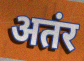
अतंर